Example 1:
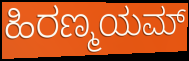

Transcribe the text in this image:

ಹಿರಣ್ಮಯಮ್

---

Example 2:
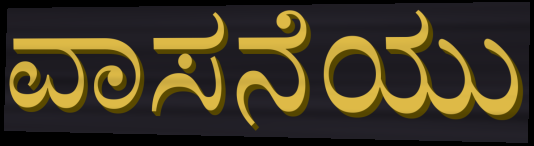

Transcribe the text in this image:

ವಾಸನೆಯು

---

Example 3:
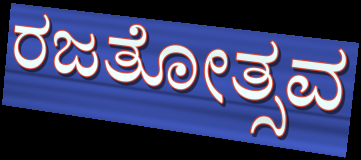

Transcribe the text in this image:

ರಜತೋತ್ಸವ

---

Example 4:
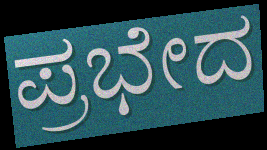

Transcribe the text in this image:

ಪ್ರಭೇದ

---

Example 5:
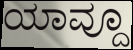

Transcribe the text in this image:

ಯಾವ್ದೂ